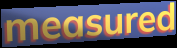
measured